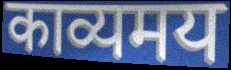
काव्यमय